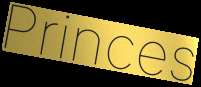
Princes